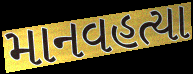
માનવહત્યા